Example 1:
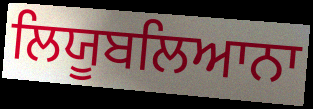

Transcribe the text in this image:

ਲਿਯੂਬਲਿਆਨਾ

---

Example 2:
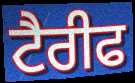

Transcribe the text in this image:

ਟੈਰੀਫ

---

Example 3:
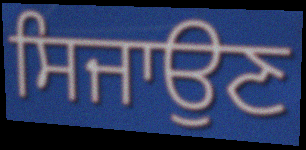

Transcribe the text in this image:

ਸਿਜਾਉਣ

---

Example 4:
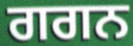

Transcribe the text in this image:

ਗਗਨ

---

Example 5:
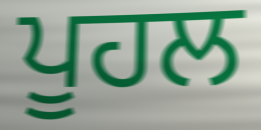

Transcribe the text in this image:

ਪੂਹਲ